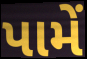
પામેં